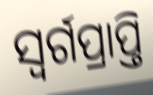
ସ୍ଵର୍ଗପ୍ରାପ୍ତି